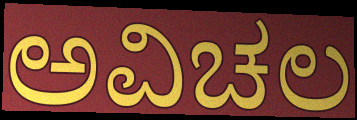
ಅವಿಚಲ